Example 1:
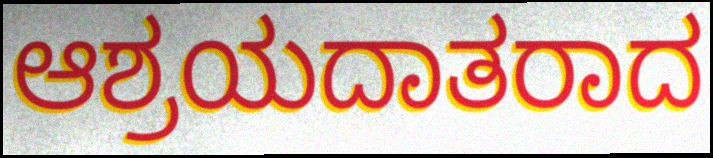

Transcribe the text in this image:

ಆಶ್ರಯದಾತರಾದ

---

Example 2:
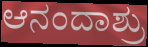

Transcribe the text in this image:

ಆನಂದಾಶ್ರು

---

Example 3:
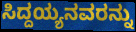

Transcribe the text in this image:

ಸಿದ್ದಯ್ಯನವರನ್ನು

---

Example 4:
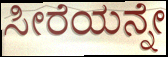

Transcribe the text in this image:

ಸೀರೆಯನ್ನೇ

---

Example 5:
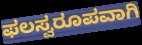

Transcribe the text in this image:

ಫಲಸ್ವರೂಪವಾಗಿ